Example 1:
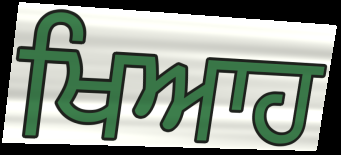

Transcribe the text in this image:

ਖਿਆਹ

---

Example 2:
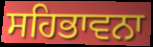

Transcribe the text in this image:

ਸਹਿਭਾਵਨਾ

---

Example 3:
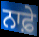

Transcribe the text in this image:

ਨਾਫ਼ੇ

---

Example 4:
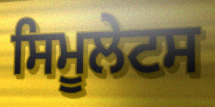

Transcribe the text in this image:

ਸਿਮੂਲੇਟਸ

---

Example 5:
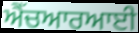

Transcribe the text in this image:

ਐੱਚਆਰਆਈ